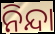
ନିନ୍ଦା